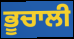
ਭੂਚਾਲੀ